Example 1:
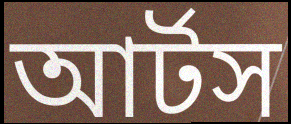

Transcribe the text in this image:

আর্টস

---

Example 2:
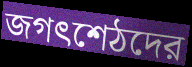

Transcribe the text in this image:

জগৎশেঠদের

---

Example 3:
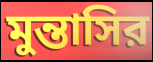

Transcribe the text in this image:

মুন্তাসির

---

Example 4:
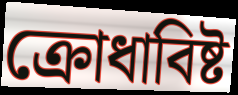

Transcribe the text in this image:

ক্রোধাবিষ্ট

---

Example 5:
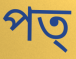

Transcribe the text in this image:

পত্